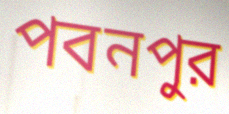
পবনপুর